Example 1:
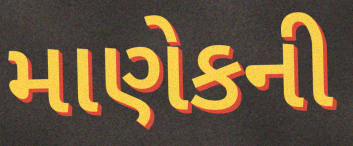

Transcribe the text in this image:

માણેકની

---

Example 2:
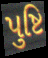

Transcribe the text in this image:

પુષ્ટિ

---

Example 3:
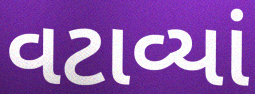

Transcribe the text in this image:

વટાવ્યાં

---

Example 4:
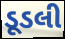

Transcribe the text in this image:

ડૂડલી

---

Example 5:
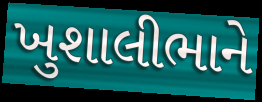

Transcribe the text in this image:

ખુશાલીભાને